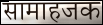
सामाहजक